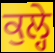
ਕੁਲ੍ਹੇ